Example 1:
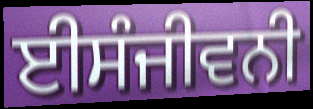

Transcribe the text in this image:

ਈਸੰਜੀਵਨੀ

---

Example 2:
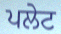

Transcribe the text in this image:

ਪਲੇਟ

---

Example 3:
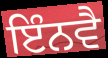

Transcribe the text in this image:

ਇੰਨਵੈ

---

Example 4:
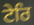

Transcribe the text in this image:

ਟੇਰਿ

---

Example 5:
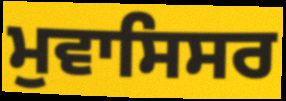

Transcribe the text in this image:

ਮੁਵਾਸਿਸਰ